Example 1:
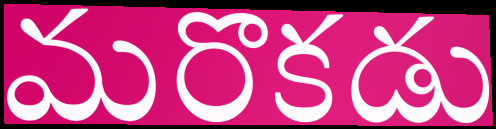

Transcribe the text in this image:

మరొకడు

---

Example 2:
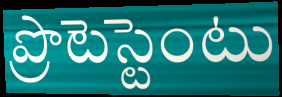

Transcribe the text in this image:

ప్రొటెస్టెంటు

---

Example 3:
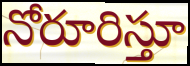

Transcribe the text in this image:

నోరూరిస్తూ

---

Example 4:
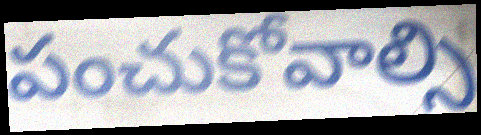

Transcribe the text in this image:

పంచుకోవాల్సి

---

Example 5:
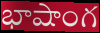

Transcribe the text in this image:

భాషాంగ